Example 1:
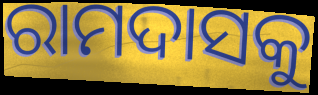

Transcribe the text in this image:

ରାମଦାସକୁ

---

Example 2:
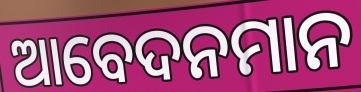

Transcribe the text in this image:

ଆବେଦନମାନ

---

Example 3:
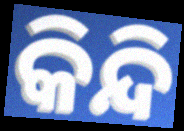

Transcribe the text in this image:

କିନ୍ଦି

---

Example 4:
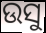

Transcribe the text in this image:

ଉସୁ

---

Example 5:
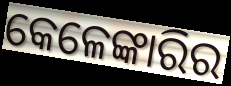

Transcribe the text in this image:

କେଳେଙ୍କାରିର